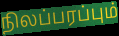
நிலப்பரப்பும்